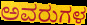
ಅವರುಗಳ